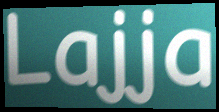
Lajja